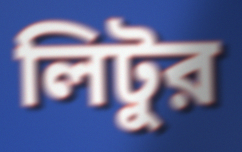
লিটুর